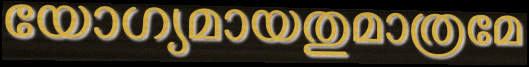
യോഗ്യമായതുമാത്രമേ